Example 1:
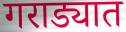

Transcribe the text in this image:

गराड्यात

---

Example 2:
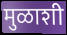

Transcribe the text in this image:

मुळाशी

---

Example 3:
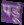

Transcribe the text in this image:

पडूं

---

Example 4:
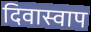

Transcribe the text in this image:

दिवास्वाप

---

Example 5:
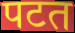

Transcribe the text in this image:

पटत